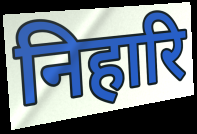
निहारि